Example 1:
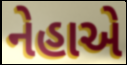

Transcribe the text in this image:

નેહાએ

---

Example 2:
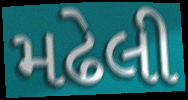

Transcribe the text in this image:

મઢેલી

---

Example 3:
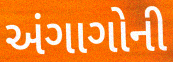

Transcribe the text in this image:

અંગાગોની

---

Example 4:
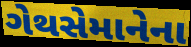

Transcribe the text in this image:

ગેથસેમાનેના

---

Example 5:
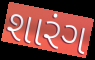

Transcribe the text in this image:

શારંગ